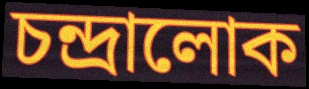
চন্দ্ৰালোক